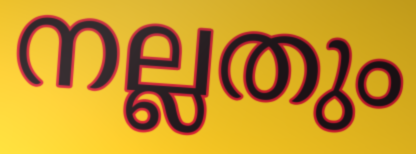
നല്ലതും